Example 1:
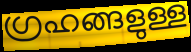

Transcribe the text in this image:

ഗ്രഹങ്ങളുള്ള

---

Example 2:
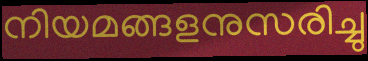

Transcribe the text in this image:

നിയമങ്ങളനുസരിച്ചു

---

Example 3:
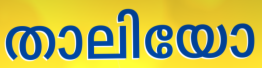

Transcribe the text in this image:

താലിയോ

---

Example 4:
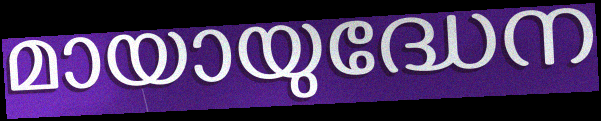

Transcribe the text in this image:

മായായുദ്ധേന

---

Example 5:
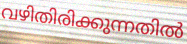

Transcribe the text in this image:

വഴിതിരിക്കുന്നതിൽ